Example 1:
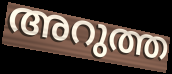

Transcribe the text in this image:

അറുത്ത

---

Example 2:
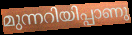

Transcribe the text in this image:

മുന്നറിയിപ്പാണു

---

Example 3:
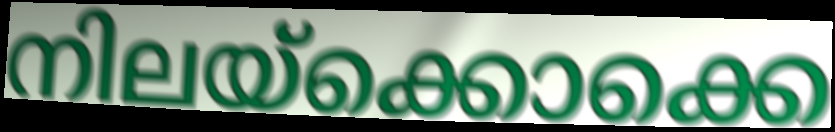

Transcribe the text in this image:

നിലയ്ക്കൊക്കെ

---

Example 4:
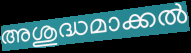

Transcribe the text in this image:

അശുദ്ധമാക്കൽ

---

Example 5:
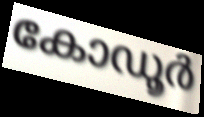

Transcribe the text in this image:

കോഡൂർ